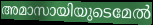
അമാസായിയുടെമേൽ